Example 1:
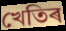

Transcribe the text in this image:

খেতিৰ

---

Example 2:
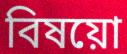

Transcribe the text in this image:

বিষয়ো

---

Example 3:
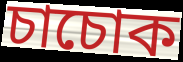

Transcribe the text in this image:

চাচোক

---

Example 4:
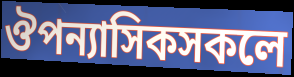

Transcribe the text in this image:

ঔপন্যাসিকসকলে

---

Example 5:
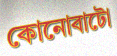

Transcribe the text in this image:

কোনোবাটো